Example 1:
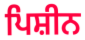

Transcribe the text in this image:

ਪਿਸ਼ੀਨ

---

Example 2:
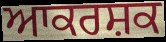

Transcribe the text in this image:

ਆਕਰਸ਼ਕ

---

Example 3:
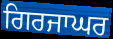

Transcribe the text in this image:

ਗਿਰਜਾਘਰ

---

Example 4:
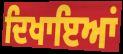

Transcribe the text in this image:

ਦਿਖਾਇਆਂ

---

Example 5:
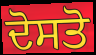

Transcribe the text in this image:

ਦੋਸਤੋ